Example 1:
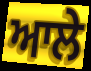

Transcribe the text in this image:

ਆਲੇ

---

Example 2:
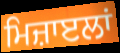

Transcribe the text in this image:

ਮਿਜ਼ਾੲਲਾਂ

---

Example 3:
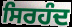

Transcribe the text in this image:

ਸਿਰਹੰਦ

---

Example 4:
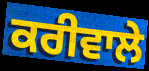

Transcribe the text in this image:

ਕਰੀਵਾਲੇ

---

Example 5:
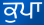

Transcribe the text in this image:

ਕੁਪਾ